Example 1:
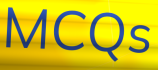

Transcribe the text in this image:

MCQs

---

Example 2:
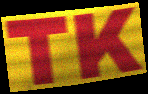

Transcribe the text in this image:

TK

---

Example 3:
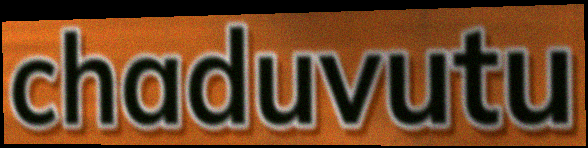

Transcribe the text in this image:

chaduvutu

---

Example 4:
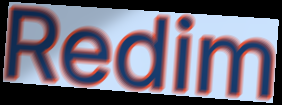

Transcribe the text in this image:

Redim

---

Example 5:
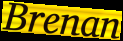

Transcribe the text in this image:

Brenan